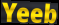
Yeeb